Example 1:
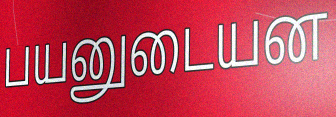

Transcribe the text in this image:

பயனுடையன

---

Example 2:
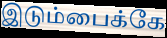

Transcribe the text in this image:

இடும்பைக்கே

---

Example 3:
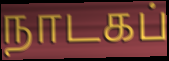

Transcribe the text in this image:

நாடகப்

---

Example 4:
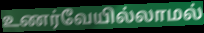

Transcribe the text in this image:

உணர்வேயில்லாமல்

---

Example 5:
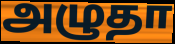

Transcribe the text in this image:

அழுதா